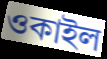
ওকাইল